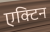
एक्टिन